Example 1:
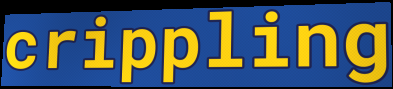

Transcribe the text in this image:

crippling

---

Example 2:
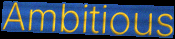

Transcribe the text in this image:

Ambitious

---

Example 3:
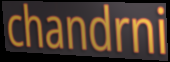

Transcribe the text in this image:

chandrni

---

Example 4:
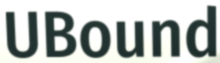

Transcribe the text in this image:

UBound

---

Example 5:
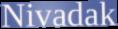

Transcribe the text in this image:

Nivadak